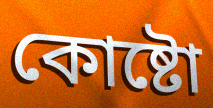
কোষ্টো